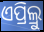
ଏପ୍ରିଲ୍ରୁ